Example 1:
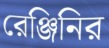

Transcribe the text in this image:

রেঞ্জিনির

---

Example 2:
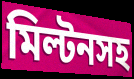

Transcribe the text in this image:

মিল্টনসহ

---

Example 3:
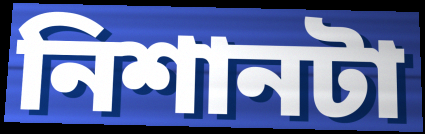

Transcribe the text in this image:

নিশানটা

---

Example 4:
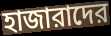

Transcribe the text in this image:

হাজারাদের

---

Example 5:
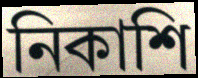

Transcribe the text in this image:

নিকাশি